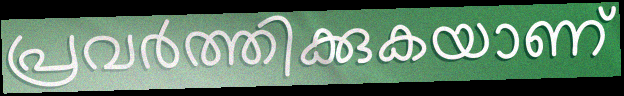
പ്രവർത്തിക്കുകയാണ്